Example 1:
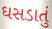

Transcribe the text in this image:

ઘસડાતું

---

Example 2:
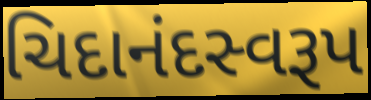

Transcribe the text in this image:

ચિદાનંદસ્વરૂપ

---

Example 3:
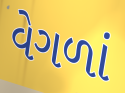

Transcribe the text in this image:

વેગળાં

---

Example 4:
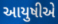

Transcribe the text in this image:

આયુષીએ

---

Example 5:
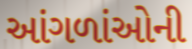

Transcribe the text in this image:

આંગળાંઓની